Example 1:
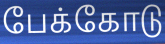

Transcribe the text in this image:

பேக்கோடு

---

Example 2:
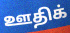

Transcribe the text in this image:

ஊதிக்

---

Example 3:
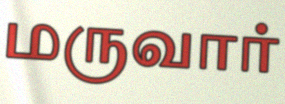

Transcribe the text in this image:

மருவார்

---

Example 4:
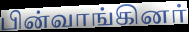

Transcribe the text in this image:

பின்வாங்கினர்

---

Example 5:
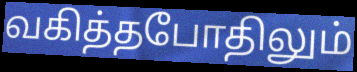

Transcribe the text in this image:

வகித்தபோதிலும்